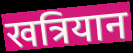
खत्रियान